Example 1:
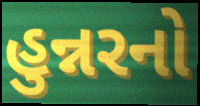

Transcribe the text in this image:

હુન્નરનો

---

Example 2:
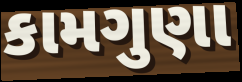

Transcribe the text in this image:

કામગુણા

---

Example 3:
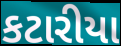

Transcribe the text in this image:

કટારીયા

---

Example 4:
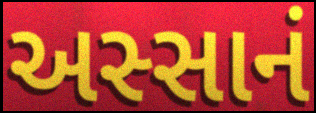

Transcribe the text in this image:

અસ્સાનં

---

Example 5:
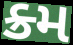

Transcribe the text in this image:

ક્ર્મ